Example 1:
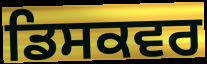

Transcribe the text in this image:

ਡਿਸਕਵਰ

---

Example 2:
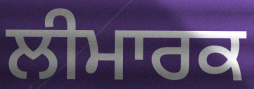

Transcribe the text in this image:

ਲੀਮਾਰਕ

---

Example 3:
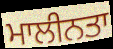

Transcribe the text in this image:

ਮਾਲੀਨਤਾ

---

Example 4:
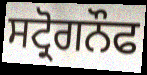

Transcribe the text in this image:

ਸਟ੍ਰੋਗਨੌਫ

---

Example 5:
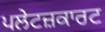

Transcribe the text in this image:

ਪਲੇਟਜ਼ਕਾਰਟ